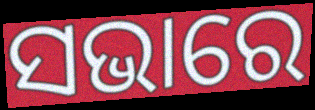
ସଭାରେ